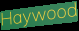
Haywood